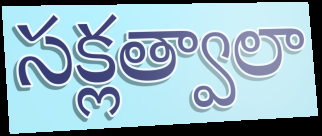
సక్లత్వాలా